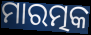
ମାରତ୍ମକ